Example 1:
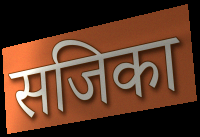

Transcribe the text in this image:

सजिका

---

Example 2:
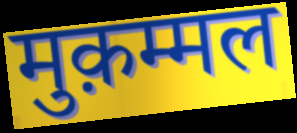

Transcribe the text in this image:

मुक़म्मल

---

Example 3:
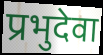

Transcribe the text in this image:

प्रभुदेवा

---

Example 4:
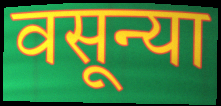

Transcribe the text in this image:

वसून्या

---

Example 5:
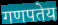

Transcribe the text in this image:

गणपतेय